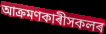
আক্ৰমণকাৰীসকলৰ